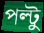
পল্টু